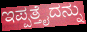
ಇಪ್ಪತ್ತೈದನ್ನು